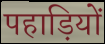
पहाड़ियों